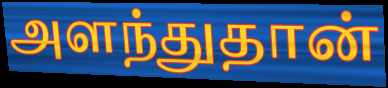
அளந்துதான்